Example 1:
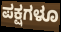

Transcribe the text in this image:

ಪಕ್ಷಗಳೂ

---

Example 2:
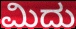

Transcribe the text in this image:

ಮಿದು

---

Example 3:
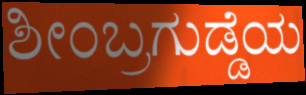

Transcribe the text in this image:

ಶೀಂಬ್ರಗುಡ್ಡೆಯ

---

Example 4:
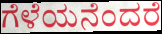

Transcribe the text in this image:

ಗೆಳೆಯನೆಂದರೆ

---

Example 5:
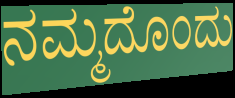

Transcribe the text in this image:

ನಮ್ಮದೊಂದು